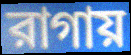
রাগায়